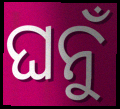
ଘନୁଁ